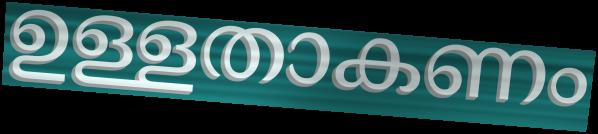
ഉള്ളതാകണം